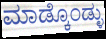
ಮಾಡ್ಕೊಂಡ್ಳು